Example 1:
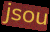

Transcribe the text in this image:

jsou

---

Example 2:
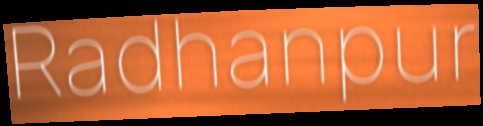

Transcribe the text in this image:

Radhanpur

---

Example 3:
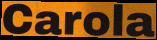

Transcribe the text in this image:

Carola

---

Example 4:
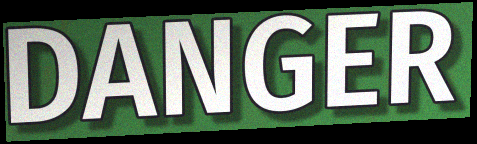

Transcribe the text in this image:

DANGER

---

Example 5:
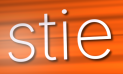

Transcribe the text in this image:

stie